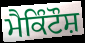
ਮੈਕਿੰਟੌਸ਼